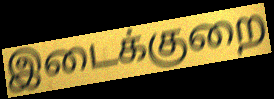
இடைக்குறை